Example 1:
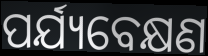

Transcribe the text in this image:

ପର୍ଯ୍ୟବେକ୍ଷଣ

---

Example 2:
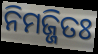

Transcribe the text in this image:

ନିମଜ୍ଜିତଃ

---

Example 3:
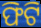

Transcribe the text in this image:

ଫିଟି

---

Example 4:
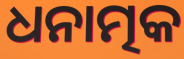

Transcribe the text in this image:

ଧନାତ୍ମକ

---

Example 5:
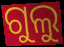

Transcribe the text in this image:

ଗୁଲୁ